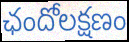
ఛందోలక్షణం